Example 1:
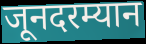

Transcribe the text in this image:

जूनदरम्यान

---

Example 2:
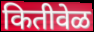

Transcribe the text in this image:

कितीवेळ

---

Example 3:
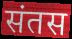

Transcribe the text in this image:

संतस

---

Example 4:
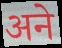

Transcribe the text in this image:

अने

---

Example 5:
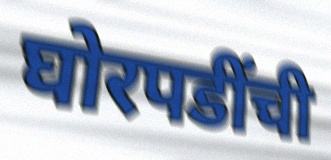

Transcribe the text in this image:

घोरपडींची